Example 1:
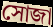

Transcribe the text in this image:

সোজা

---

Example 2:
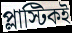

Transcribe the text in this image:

প্লাস্টিকই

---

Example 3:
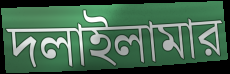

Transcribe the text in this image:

দলাইলামার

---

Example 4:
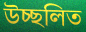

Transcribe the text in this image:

উচ্ছলিত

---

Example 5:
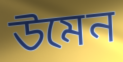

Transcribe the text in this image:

উমেন